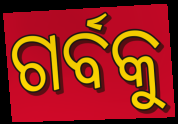
ଗର୍ବକୁ